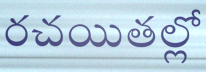
రచయితల్లో